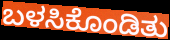
ಬಳಸಿಕೊಂಡಿತು